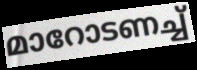
മാറോടണച്ച്